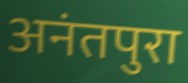
अनंतपुरा